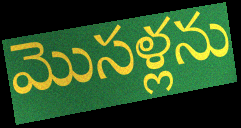
మొసళ్లను